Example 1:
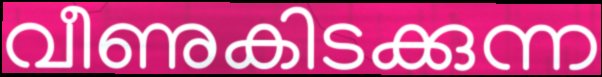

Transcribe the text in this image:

വീണുകിടക്കുന്ന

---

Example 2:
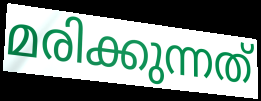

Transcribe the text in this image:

മരിക്കുന്നത്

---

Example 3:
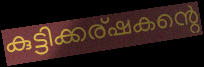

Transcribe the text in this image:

കുട്ടിക്കര്ഷകന്റെ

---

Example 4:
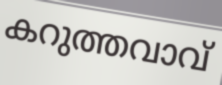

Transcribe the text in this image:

കറുത്തവാവ്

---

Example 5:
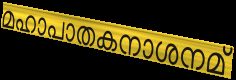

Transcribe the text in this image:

മഹാപാതകനാശനമ്